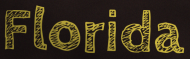
Florida